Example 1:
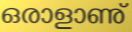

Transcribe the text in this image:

ഒരാളാണു്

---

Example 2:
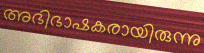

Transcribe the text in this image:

അഭിഭാഷകരായിരുന്നു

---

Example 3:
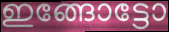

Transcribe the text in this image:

ഇങ്ങോട്ടോ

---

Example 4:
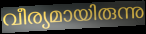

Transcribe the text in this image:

വീര്യമായിരുന്നു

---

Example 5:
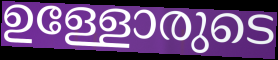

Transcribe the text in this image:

ഉള്ളോരുടെ